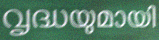
വൃദ്ധയുമായി